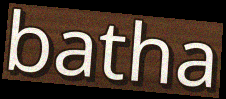
batha